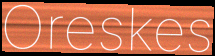
Oreskes